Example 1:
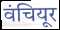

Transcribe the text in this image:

वंचियूर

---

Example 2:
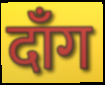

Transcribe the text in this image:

दाँग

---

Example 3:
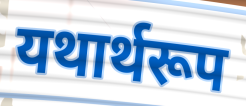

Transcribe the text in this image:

यथार्थरूप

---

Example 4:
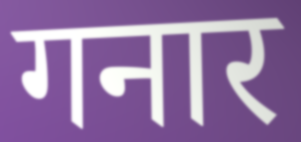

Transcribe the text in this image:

गनार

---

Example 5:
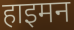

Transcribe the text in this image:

हाइमन